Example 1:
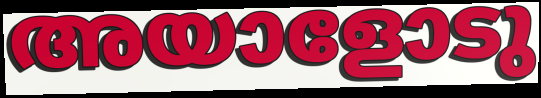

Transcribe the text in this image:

അയാളോടു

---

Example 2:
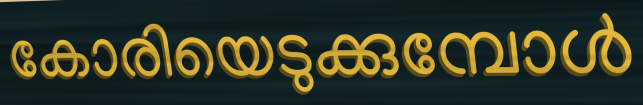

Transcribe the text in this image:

കോരിയെടുക്കുമ്പോൾ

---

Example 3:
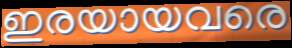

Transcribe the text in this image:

ഇരയായവരെ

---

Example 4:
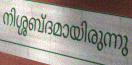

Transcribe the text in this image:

നിശ്ശബ്ദമായിരുന്നു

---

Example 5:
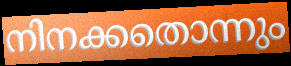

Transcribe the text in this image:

നിനക്കതൊന്നും